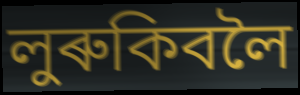
লুৰুকিবলৈ